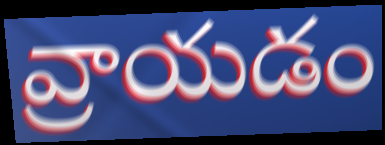
వ్రాయడం